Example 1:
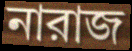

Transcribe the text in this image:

নারাজ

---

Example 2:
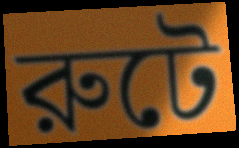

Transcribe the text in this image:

রুটে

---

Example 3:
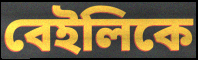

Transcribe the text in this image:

বেইলিকে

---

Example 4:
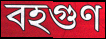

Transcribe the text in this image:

বহগুণ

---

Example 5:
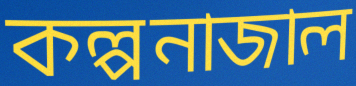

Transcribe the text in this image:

কল্পনাজাল